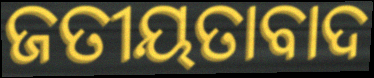
ଜତୀୟତାବାଦ